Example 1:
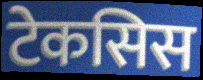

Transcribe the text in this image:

टेकसिस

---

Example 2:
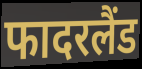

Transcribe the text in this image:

फादरलैंड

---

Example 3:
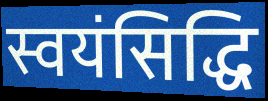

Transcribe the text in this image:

स्वयंसिद्धि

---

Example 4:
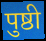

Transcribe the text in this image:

पुष्ठी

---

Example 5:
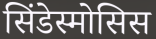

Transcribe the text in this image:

सिंडेस्मोसिस